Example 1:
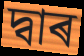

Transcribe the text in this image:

দ্বাৰ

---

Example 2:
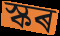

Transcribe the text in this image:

স্কৰ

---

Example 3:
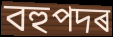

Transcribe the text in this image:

বহুপদৰ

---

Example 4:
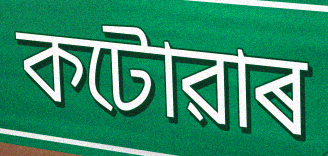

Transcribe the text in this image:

কটোৱাৰ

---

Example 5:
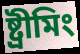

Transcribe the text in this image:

ষ্ট্ৰীমিং